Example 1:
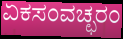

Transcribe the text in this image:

ಏಕಸಂವಚ್ಛರಂ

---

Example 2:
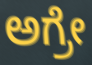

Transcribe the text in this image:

ಅಗ್ರೇ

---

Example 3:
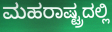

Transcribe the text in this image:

ಮಹರಾಷ್ಟ್ರದಲ್ಲಿ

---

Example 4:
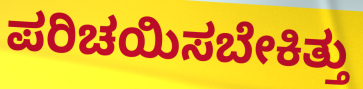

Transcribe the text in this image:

ಪರಿಚಯಿಸಬೇಕಿತ್ತು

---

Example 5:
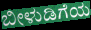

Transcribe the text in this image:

ಬೀಳುಡಿಗೆಯ